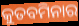
କୁତବମିନାର